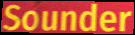
Sounder